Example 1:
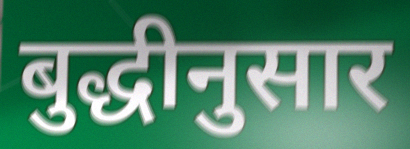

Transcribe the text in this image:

बुद्धीनुसार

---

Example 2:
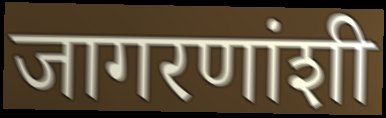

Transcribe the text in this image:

जागरणांशी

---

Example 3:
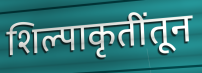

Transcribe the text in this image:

शिल्पाकृतींतून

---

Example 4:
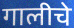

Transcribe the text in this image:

गालीचे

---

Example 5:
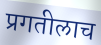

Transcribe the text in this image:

प्रगतीलाच